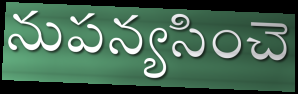
నుపన్యసించె